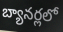
బ్యానర్లలో